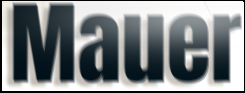
Mauer